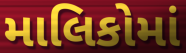
માલિકોમાં